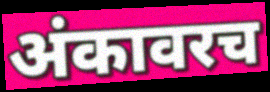
अंकावरच